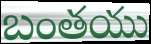
బంతయు